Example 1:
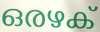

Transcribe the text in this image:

ഒരഴക്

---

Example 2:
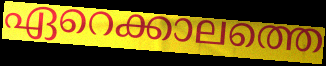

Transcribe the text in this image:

ഏറെക്കാലത്തെ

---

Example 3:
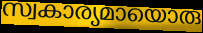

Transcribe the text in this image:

സ്വകാര്യമായൊരു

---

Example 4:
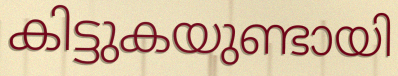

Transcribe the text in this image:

കിട്ടുകയുണ്ടായി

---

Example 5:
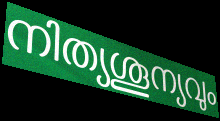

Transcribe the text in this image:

നിത്യശൂന്യവും